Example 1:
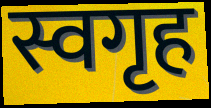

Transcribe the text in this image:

स्वगृह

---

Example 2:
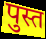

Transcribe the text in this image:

पुस्त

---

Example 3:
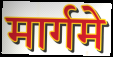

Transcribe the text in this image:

मार्गमे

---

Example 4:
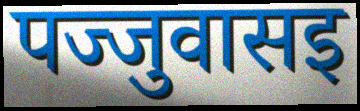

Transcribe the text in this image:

पज्जुवासइ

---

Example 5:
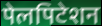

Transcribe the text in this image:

पेलपिटेशन